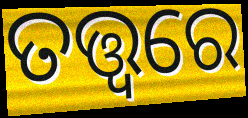
ତତ୍ତ୍ୱରେ